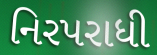
નિરપરાધી